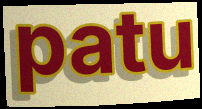
patu